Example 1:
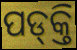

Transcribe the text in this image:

ପଡ୍‌କ୍ତି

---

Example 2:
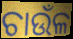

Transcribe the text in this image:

ଚାଉଁଳ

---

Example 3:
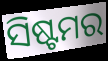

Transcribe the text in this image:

ସିଷ୍ଟମର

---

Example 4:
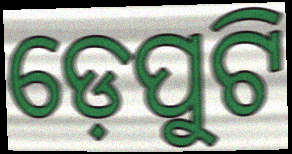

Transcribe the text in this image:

ଡ଼େପୁଟି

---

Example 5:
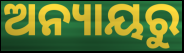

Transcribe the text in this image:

ଅନ୍ୟାୟରୁ